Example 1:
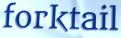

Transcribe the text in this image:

forktail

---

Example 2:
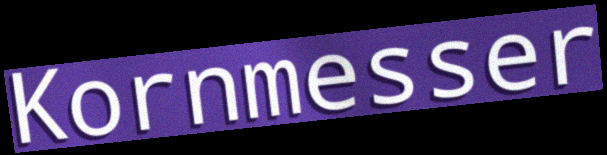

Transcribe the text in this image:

Kornmesser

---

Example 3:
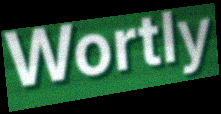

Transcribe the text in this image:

Wortly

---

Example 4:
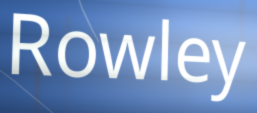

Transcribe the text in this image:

Rowley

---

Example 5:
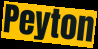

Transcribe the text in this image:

Peyton